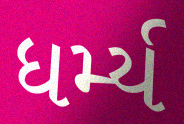
ધર્મ્ય